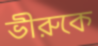
ভীরুকে